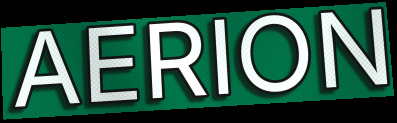
AERION